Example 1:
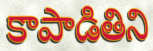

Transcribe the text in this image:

కాపాడితిని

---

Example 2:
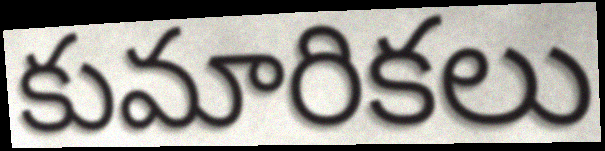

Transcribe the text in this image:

కుమారికలు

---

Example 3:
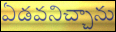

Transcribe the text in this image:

ఏడవనిచ్చాను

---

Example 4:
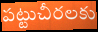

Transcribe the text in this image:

పట్టుచీరలకు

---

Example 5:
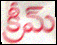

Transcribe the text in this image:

క్రీమ్